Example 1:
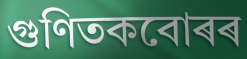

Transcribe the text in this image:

গুণিতকবোৰৰ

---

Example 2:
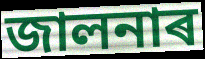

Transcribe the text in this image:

জালনাৰ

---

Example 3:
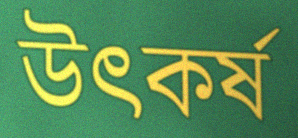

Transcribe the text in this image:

উৎকৰ্ষ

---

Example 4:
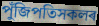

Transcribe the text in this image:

পুঁজিপতিসকলৰ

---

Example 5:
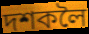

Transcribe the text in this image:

দশকলৈ